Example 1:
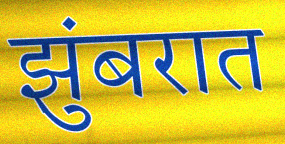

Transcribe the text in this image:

झुंबरात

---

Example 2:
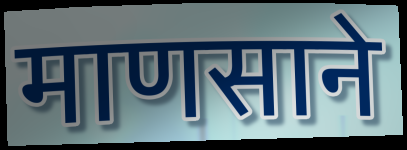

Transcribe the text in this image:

माणसाने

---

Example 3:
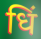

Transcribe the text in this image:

धिं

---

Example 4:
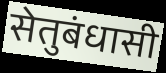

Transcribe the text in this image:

सेतुबंधासी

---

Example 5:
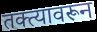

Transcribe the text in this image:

तक्त्यावरून